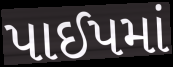
પાઈપમાં